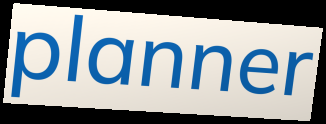
planner